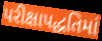
પરીક્ષાપદ્ધતિમાં